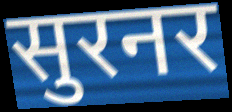
सुरनर